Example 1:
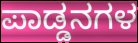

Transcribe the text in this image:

ಪಾಡ್ಡನಗಳ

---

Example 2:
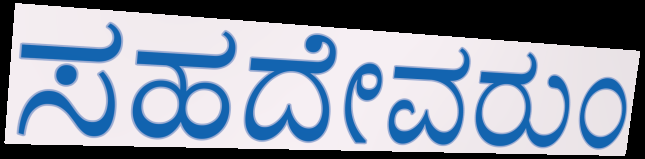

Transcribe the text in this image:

ಸಹದೇವರುಂ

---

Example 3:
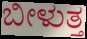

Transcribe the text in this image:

ಬೀಳುತ್ತ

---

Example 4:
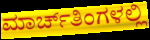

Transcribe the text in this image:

ಮಾರ್ಚ್‌ತಿಂಗಳಲ್ಲಿ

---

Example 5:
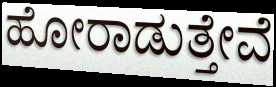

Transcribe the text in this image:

ಹೋರಾಡುತ್ತೇವೆ